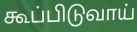
கூப்பிடுவாய்